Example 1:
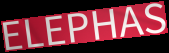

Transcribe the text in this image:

ELEPHAS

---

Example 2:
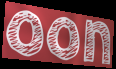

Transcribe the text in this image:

oon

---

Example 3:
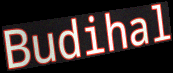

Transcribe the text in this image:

Budihal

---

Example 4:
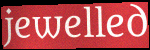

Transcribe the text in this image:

jewelled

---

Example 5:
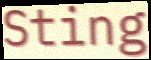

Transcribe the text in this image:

Sting